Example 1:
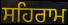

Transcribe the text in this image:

ਸਹਿਰਾਮ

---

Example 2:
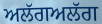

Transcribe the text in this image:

ਅਲੱਗਅਲੱਗ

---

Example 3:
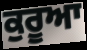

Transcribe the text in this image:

ਕੁਰੂਆ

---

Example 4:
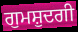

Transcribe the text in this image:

ਗੁਮਸ਼ੁਦਗੀ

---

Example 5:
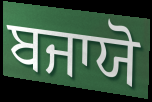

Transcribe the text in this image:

ਬਜਾਯੋ